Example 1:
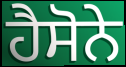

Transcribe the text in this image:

ਹੈਸੋਨੇ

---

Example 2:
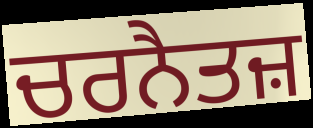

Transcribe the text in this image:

ਚਰਨੈਤਜ਼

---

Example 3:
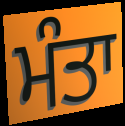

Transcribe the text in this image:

ਮੰਤਾ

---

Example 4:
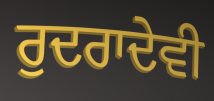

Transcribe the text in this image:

ਰੁਦਰਾਦੇਵੀ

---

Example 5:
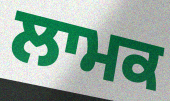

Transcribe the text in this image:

ਲਾਮਕ